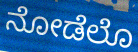
ನೋಡೆಲೊ